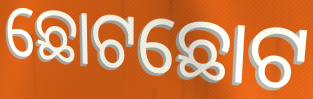
ଛୋଟଛୋଟ